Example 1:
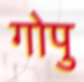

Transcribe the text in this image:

गोपु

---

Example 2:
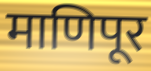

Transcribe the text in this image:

माणिपूर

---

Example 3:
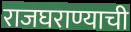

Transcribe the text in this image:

राजघराण्याची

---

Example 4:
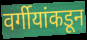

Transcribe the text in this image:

वर्गीयांकडून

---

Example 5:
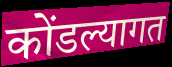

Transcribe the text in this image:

कोंडल्यागत